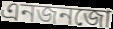
এনজনজো